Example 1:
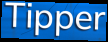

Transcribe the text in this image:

Tipper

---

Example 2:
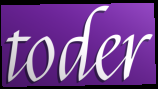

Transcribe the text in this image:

toder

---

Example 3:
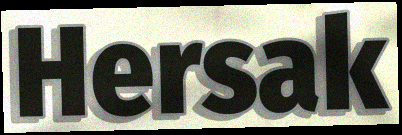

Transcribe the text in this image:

Hersak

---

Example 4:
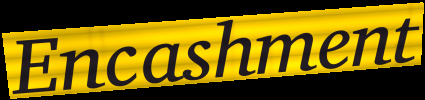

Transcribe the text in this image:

Encashment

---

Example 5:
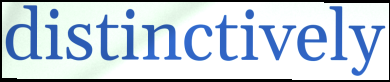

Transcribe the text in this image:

distinctively